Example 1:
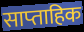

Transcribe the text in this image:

साप्‍ताहिक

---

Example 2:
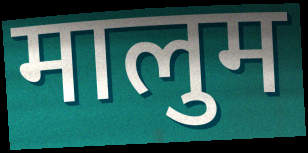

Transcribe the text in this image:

मालुम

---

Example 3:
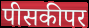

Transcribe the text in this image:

पीसकीपर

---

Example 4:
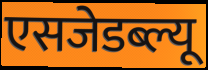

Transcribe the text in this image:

एसजेडब्ल्यू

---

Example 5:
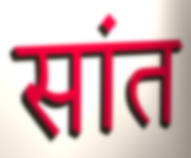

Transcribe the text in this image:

सांत